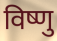
विष्णु